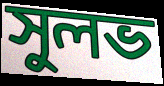
সুলভ